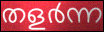
തളർന്ന